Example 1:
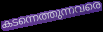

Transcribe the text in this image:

കടന്നെത്തുന്നവരെ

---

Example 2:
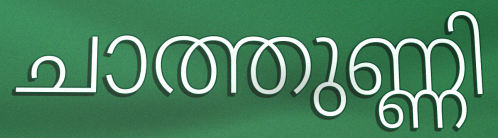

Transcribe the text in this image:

ചാത്തുണ്ണി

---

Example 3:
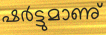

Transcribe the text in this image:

ഷർട്ടുമാണു്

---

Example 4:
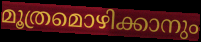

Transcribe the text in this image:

മൂത്രമൊഴിക്കാനും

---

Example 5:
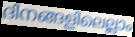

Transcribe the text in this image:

ദിനങ്ങളിലെല്ലാം